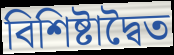
বিশিষ্টাদ্বৈত